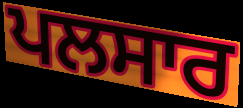
ਪਲਸਾਰ